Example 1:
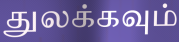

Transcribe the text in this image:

துலக்கவும்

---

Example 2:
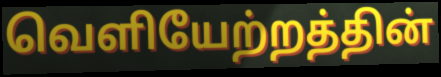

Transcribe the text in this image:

வெளியேற்றத்தின்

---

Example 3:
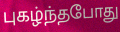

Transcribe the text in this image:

புகழ்ந்தபோது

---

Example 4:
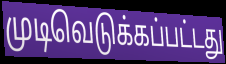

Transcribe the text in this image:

முடிவெடுக்கப்பட்டது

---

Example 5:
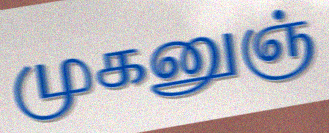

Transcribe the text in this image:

முகனுஞ்